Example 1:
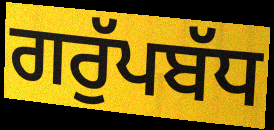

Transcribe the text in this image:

ਗਰੁੱਪਬੱਧ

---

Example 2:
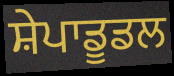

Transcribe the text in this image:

ਸ਼ੇਪਾਡੂਡਲ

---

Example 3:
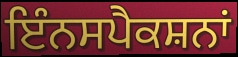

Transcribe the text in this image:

ਇੰਨਸਪੈਕਸ਼ਨਾਂ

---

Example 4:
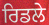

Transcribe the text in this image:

ਰਿਡਲੇ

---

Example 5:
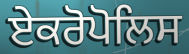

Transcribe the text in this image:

ਏਕਰੋਪੋਲਿਸ